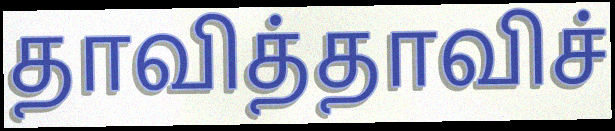
தாவித்தாவிச்